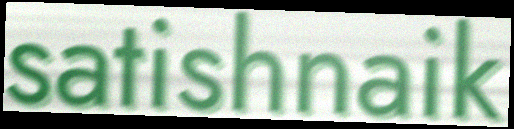
satishnaik